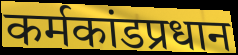
कर्मकांडप्रधान